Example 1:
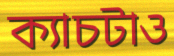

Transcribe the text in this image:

ক্যাচটাও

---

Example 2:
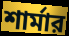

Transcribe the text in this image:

শার্মার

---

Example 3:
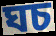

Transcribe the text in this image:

ঘচ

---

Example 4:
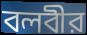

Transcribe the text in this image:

বলবীর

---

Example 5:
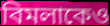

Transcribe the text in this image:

বিমলাকেও